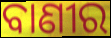
ବାଣୀର